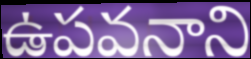
ఉపవనాని